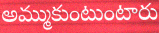
అమ్ముకుంటుంటారు